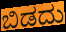
ಬಿಡದು